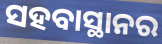
ସହବାସ୍ଥାନର